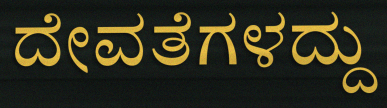
ದೇವತೆಗಳದ್ದು